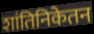
शांतिनिकेतन